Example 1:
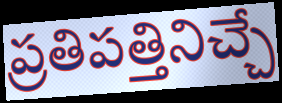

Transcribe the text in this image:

ప్రతిపత్తినిచ్చే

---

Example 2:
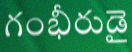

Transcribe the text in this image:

గంభీరుడై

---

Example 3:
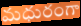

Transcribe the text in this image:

మధురంగా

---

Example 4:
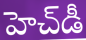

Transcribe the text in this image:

హెచ్‌డీ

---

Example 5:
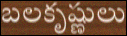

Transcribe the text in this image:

బలకృష్ణులు